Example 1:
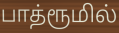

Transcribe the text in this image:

பாத்ரூமில்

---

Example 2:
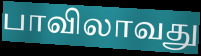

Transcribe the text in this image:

பாவிலாவது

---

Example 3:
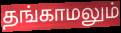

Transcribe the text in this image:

தங்காமலும்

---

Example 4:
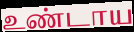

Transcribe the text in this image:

உண்டாய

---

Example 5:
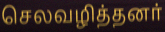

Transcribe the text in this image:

செலவழித்தனர்